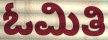
ಓಮಿತಿ